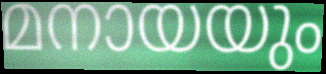
മനായയും